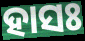
ହାସଃ